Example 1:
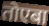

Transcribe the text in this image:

तोएबा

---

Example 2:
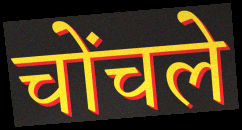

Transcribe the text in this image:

चोंचले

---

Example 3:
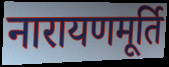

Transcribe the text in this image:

नारायणमूर्ति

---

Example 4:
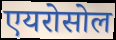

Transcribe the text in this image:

एयरोसोल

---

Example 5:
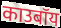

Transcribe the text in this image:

काउबॉय